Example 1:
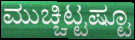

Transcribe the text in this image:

ಮುಚ್ಚಿಟ್ಟಷ್ಟೂ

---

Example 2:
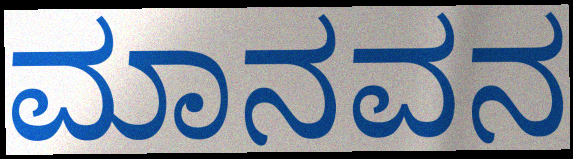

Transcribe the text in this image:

ಮಾನವನ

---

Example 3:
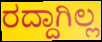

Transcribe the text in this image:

ರದ್ದಾಗಿಲ್ಲ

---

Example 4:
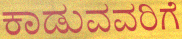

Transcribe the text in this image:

ಕಾಡುವವರಿಗೆ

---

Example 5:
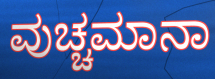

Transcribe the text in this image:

ವುಚ್ಚಮಾನಾ